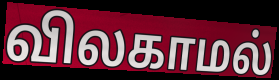
விலகாமல்